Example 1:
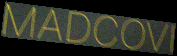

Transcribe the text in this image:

MADCOVI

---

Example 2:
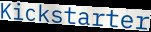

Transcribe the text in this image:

Kickstarter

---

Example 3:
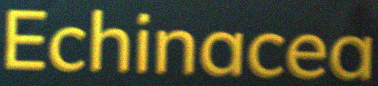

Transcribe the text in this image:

Echinacea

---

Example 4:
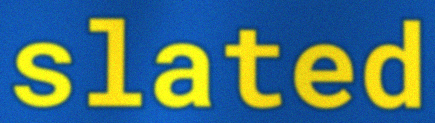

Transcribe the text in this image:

slated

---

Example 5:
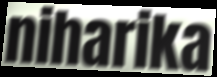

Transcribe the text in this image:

niharika